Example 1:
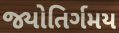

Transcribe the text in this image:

જ્યોતિર્ગમય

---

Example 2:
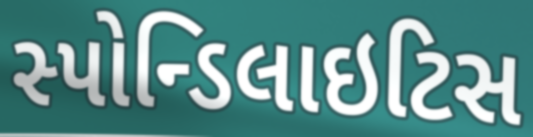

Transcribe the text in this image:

સ્પોન્ડિલાઇટિસ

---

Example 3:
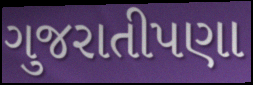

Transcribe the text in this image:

ગુજરાતીપણા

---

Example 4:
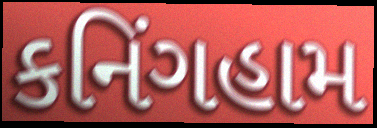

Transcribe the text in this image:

કનિંગહામ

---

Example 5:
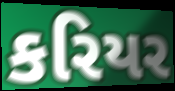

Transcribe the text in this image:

કરિયર